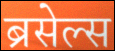
ब्रसेल्स